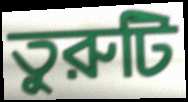
তুরুটি